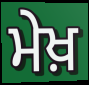
ਮੇਖ਼